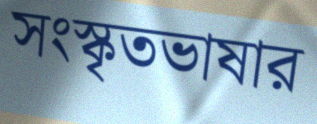
সংস্কৃতভাষার